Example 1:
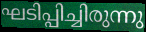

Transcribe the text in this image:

ഘടിപ്പിച്ചിരുന്നു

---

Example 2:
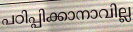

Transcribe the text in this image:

പഠിപ്പിക്കാനാവില്ല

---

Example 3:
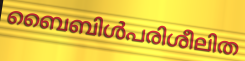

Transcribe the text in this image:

ബൈബിൾപരിശീലിത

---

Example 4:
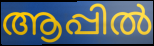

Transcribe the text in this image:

ആപ്പിൽ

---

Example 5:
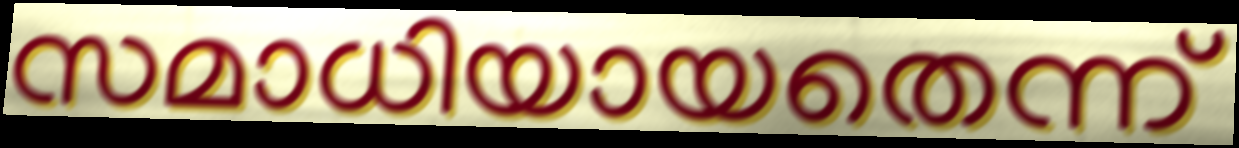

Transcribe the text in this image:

സമാധിയായതെന്ന്